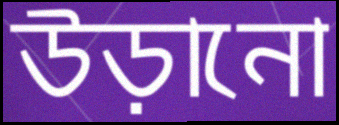
উড়ানো